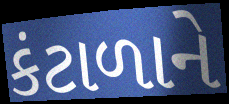
કંટાળાને